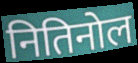
नितिनोल